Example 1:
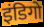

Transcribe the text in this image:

इंडिगो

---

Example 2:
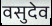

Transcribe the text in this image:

वसुदेव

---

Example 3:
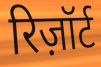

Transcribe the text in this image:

रिज़ॉर्ट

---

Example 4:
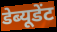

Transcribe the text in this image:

डेब्यूडेंट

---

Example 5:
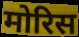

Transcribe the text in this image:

मोरिस